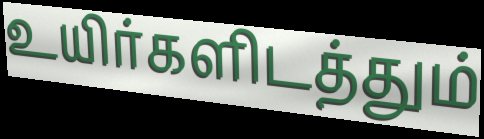
உயிர்களிடத்தும்